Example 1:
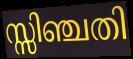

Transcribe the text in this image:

സ്സിഞ്ചതി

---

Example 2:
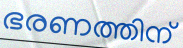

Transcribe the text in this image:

ഭരണത്തിന്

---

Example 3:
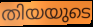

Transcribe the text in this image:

തിയയുടെ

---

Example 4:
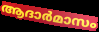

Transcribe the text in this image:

ആദാർമാസം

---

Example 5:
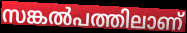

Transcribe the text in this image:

സങ്കൽപത്തിലാണ്